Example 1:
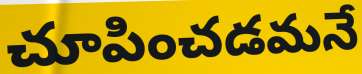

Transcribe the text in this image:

చూపించడమనే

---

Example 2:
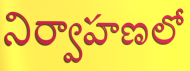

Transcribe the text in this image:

నిర్వాహణలో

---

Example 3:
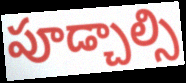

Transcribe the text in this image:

పూడ్చాల్సి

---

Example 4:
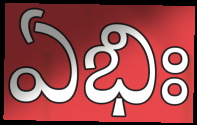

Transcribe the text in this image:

ఏభిః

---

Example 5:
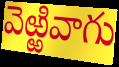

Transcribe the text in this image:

వెఱ్ఱివాగు